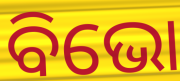
ବିଭୋ